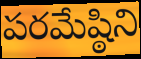
పరమేష్ఠిని